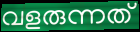
വളരുന്നത്